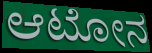
ಆಟೋನ